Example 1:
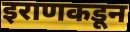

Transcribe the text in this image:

इराणकडून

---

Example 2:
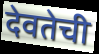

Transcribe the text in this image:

देवतेची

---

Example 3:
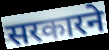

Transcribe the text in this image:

सरकारने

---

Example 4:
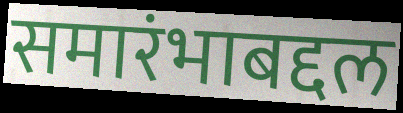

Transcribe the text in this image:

समारंभाबद्दल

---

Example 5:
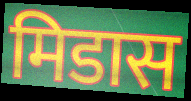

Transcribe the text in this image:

मिडास